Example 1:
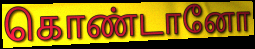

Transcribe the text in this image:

கொண்டானோ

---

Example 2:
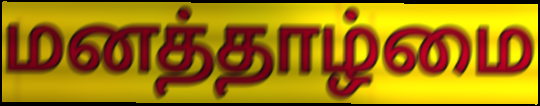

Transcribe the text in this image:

மனத்தாழ்மை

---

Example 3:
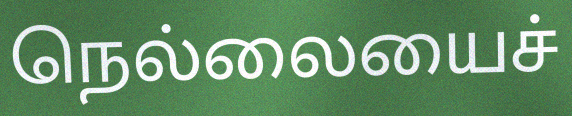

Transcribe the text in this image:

நெல்லையைச்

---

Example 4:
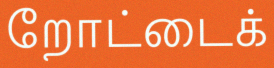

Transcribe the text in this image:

றோட்டைக்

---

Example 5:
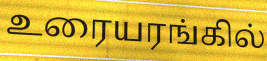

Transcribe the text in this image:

உரையரங்கில்